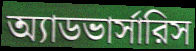
অ্যাডভার্সারিস